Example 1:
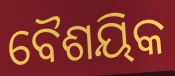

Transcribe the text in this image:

ବୈଶୟିକ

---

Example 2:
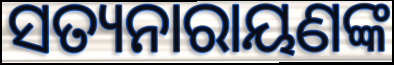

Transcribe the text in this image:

ସତ୍ୟନାରାୟଣଙ୍କ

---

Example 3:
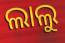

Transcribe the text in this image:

ଲାଲୁ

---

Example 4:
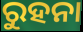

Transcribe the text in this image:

ରୁହନା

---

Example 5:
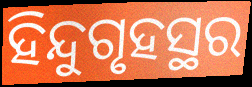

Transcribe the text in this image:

ହିନ୍ଦୁଗୃହସ୍ଥର